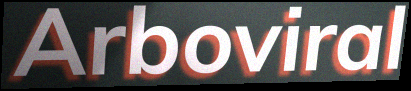
Arboviral